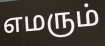
எமரும்